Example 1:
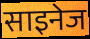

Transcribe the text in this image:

साइनेज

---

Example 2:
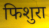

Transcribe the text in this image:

फिशुरा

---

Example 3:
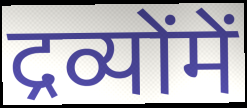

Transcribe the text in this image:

द्रव्योंमें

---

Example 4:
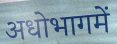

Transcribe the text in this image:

अधोभागमें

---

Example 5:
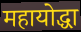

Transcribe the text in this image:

महायोद्धा